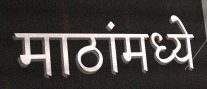
माठांमध्ये